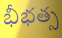
భీభత్స